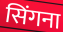
सिंगना